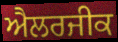
ਐਲਰਜੀਕ